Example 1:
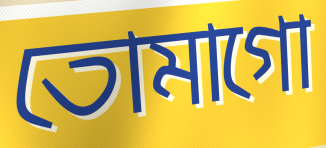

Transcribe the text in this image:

তোমাগো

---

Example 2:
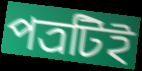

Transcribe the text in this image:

পত্রটিই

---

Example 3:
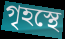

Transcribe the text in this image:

গৃহস্থে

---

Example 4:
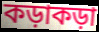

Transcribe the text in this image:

কড়াকড়া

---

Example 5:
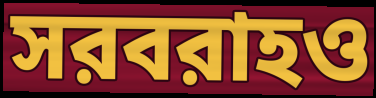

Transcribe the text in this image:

সরবরাহও